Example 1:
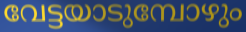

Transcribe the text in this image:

വേട്ടയാടുമ്പോഴും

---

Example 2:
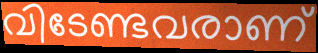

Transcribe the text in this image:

വിടേണ്ടവരാണ്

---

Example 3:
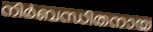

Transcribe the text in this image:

നിർബന്ധിതനായ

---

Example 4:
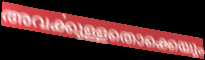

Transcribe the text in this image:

അവൎക്കുള്ളതൊക്കെയും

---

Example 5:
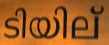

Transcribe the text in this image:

ടിയില്